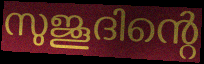
സുജൂദിന്റെ